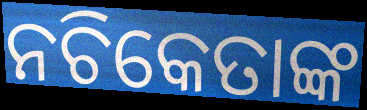
ନଚିକେତାଙ୍କ